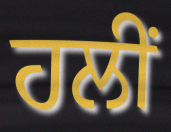
ਹਲੀਂ